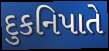
દુકનિપાતે